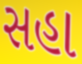
સહા